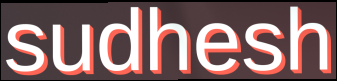
sudhesh